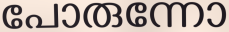
പോരുന്നോ